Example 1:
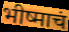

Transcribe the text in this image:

भीष्माचं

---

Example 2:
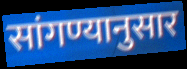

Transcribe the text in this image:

सांगण्यानुसार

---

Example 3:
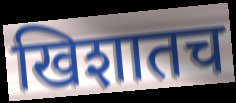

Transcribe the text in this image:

खिशातच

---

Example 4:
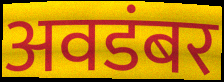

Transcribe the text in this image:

अवडंबर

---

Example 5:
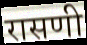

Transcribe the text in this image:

रासणी